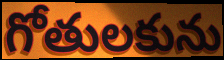
గోతులకును